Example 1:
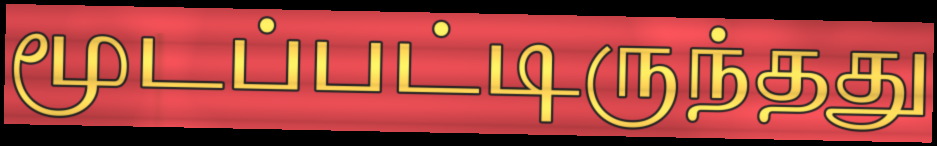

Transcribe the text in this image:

மூடப்பட்டிருந்தது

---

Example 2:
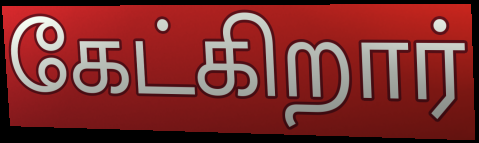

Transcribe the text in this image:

கேட்கிறார்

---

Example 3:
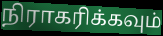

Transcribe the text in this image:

நிராகரிக்கவும்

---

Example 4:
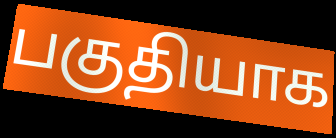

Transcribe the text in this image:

பகுதியாக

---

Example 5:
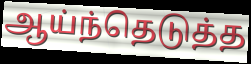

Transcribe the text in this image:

ஆய்ந்தெடுத்த